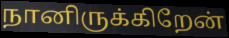
நானிருக்கிறேன்